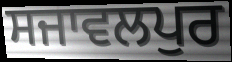
ਸਜਾਵਲਪੁਰ